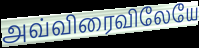
அவ்விரைவிலேயே